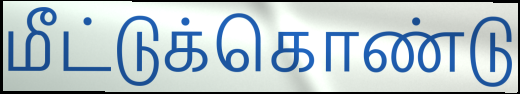
மீட்டுக்கொண்டு